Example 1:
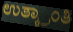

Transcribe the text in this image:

ಉತ್ಕ್ರಾಂತಿ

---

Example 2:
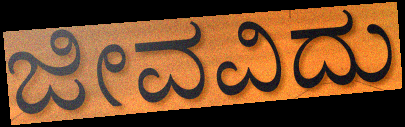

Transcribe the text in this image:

ಜೀವವಿದು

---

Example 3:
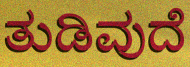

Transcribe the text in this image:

ತುಡಿವುದೆ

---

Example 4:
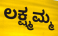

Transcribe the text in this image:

ಲಕ್ಷ್ಮಮ್ಮ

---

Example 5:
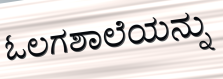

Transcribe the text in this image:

ಓಲಗಶಾಲೆಯನ್ನು